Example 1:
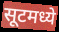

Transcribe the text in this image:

सूटमध्ये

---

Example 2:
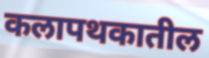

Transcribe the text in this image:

कलापथकातील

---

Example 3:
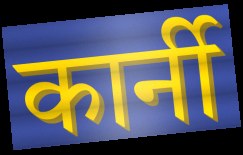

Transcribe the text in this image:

कार्नी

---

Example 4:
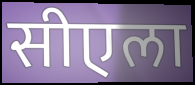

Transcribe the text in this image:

सीएला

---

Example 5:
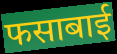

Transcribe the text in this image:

फसाबाई